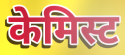
केमिस्ट